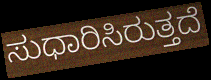
ಸುಧಾರಿಸಿರುತ್ತದೆ